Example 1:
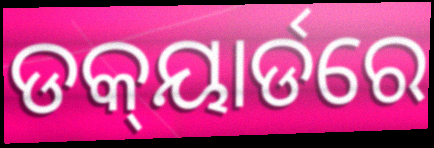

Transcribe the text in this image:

ଡକ୍‍ୟାର୍ଡରେ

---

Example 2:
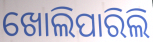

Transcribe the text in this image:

ଖୋଲିପାରିଲି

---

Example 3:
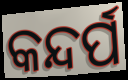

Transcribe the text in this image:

କନ୍ଦର୍ପ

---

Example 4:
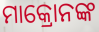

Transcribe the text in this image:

ମାକ୍ରୋନଙ୍କ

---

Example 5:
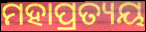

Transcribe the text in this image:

ମହାପ୍ରତ୍ୟୟ